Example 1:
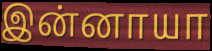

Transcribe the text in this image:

இன்னாயா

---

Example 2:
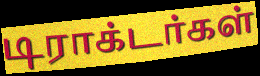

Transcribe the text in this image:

டிராக்டர்கள்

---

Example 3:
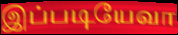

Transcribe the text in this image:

இப்படியேவா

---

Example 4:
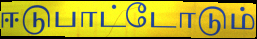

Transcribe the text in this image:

ஈடுபாட்டோடும்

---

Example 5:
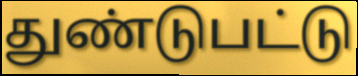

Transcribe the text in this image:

துண்டுபட்டு